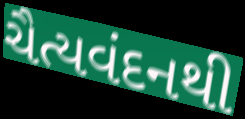
ચૈત્યવંદનથી